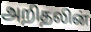
அறிதலின்